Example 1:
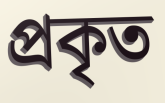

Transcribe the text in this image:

প্রকৃত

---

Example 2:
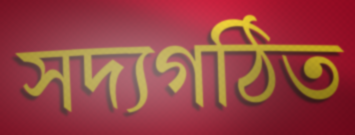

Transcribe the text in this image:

সদ্যগঠিত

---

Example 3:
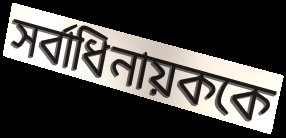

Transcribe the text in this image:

সর্বাধিনায়ককে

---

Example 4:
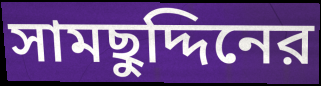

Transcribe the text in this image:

সামছুদ্দিনের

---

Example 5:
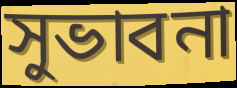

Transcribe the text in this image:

সুভাবনা